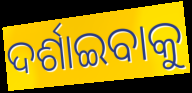
ଦର୍ଶାଇବାକୁ